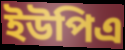
ইউপিএ